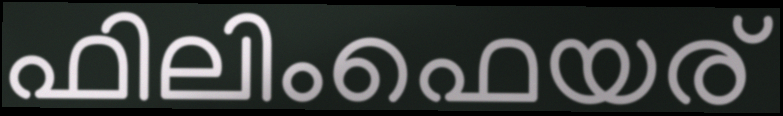
ഫിലിംഫെയര്